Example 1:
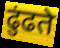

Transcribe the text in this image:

ढुंढते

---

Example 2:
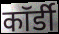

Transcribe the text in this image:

कॉर्डी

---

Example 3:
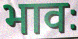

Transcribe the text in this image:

भावः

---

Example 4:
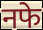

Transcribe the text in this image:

नफे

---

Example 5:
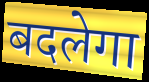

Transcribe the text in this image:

बदलेगा